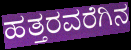
ಹತ್ತರವರೆಗಿನ